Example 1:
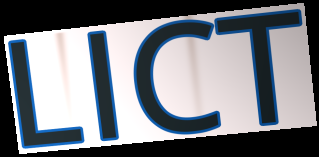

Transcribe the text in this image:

LICT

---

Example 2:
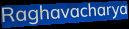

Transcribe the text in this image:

Raghavacharya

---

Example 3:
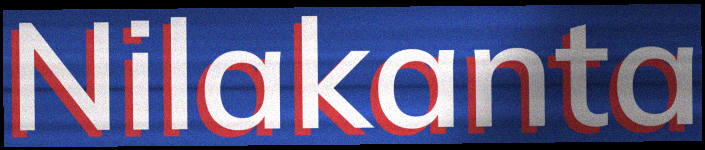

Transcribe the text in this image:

Nilakanta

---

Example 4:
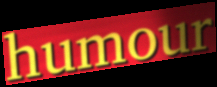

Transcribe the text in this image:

humour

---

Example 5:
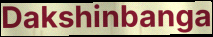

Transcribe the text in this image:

Dakshinbanga